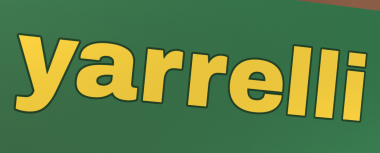
yarrelli